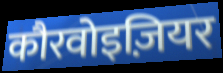
कौरवोइज़ियर